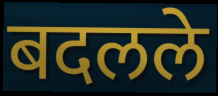
बदलले